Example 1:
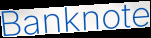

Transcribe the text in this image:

Banknote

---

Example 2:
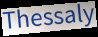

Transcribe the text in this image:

Thessaly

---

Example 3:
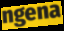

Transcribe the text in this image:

ngena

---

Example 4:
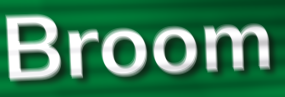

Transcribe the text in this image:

Broom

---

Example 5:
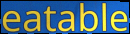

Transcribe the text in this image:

eatable